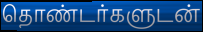
தொண்டர்களுடன்